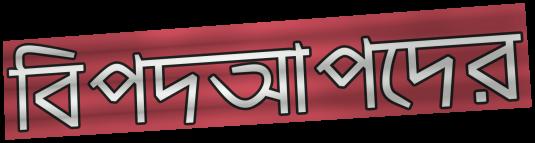
বিপদআপদের